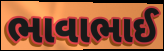
ભાવાભાઈ